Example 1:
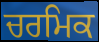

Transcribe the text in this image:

ਚਰਮਿਕ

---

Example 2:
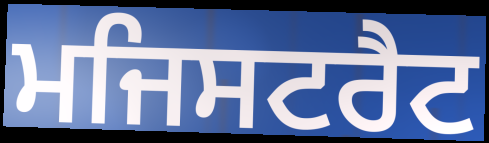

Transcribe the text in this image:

ਮਜਿਸਟਰੈਟ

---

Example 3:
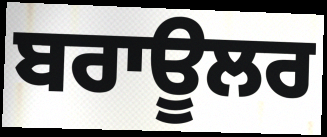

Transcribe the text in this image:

ਬਰਾਊਲਰ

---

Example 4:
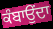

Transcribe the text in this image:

ਕੰਬਾਉਂਦਾ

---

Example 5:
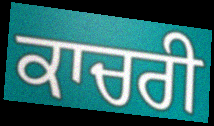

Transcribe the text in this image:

ਕਾਚਰੀ